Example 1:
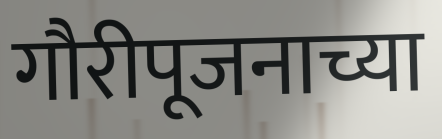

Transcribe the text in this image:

गौरीपूजनाच्या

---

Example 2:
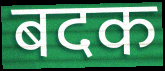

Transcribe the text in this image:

बदक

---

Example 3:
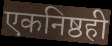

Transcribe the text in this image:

एकनिष्ठही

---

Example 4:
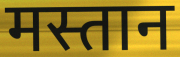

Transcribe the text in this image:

मस्तान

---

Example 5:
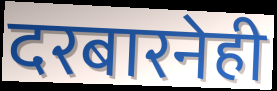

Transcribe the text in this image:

दरबारनेही